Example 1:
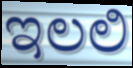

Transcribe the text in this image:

ಇಲಲಿ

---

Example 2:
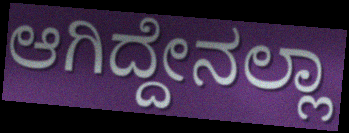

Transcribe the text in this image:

ಆಗಿದ್ದೇನಲ್ಲಾ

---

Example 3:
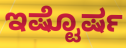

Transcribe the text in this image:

ಇಷ್ಟೊರ್ಷ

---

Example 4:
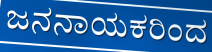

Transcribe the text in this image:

ಜನನಾಯಕರಿಂದ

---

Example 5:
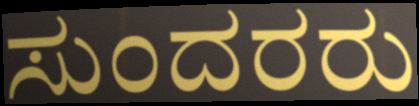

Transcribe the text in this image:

ಸುಂದರರು